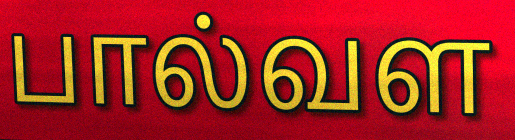
பால்வள